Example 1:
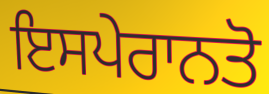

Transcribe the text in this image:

ਇਸਪੇਰਾਨਤੋ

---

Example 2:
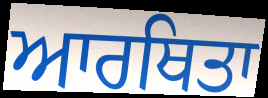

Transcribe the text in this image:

ਆਰਥਿਤਾ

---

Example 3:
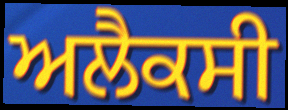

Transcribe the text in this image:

ਅਲੈਕਸੀ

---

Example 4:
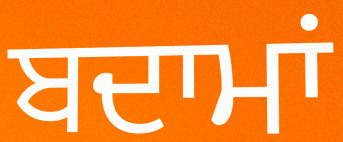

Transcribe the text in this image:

ਬਦਾਮਾਂ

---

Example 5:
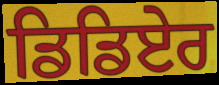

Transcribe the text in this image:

ਡਿਡਿਏਰ